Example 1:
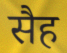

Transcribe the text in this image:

सैह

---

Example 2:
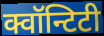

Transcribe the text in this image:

क्वॉन्टिटी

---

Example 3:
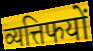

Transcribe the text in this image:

व्यत्तिफयों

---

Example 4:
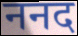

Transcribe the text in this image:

ननद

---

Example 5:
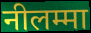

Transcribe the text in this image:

नीलम्मा